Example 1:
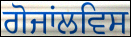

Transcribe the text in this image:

ਗੋਜਾਂਲਵਿਸ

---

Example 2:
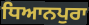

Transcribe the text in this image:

ਧਿਆਨਪੁਰਾ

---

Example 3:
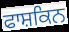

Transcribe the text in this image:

ਫਾਸ਼ਕਿਨ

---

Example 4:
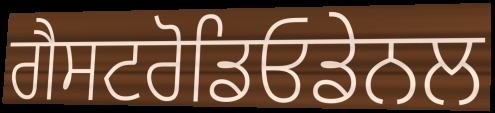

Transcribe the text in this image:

ਗੈਸਟਰੋਡਿਓਡੇਨਲ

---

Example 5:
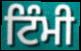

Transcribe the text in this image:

ਟਿੰਮੀ